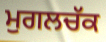
ਮੁਗਲਚੱਕ